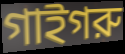
গাইগৰু